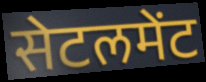
सेटलमेंट